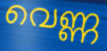
വെണ്ണ